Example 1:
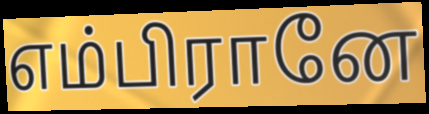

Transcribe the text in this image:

எம்பிரானே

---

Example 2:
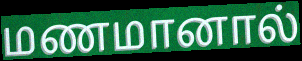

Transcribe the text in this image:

மணமானால்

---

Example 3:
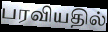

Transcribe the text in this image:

பரவியதில்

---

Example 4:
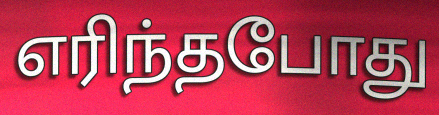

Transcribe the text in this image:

எரிந்தபோது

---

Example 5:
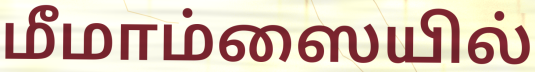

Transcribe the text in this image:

மீமாம்ஸையில்